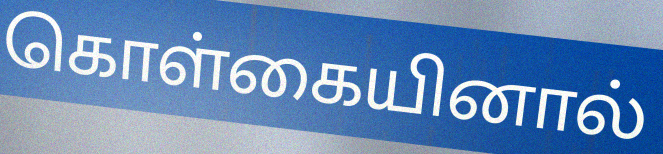
கொள்கையினால்